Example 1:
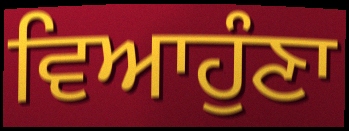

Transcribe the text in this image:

ਵਿਆਹੁੰਣਾ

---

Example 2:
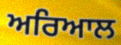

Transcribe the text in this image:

ਅਰਿਆਲ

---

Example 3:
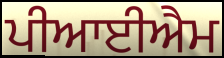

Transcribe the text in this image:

ਪੀਆਈਐਮ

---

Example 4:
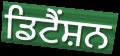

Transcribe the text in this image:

ਡਿਟੈਂਸ਼ਨ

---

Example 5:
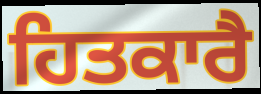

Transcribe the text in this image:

ਹਿਤਕਾਰੈ